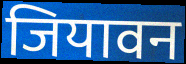
जियावन